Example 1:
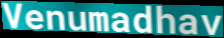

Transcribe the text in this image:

Venumadhav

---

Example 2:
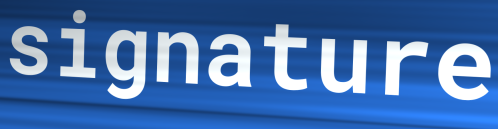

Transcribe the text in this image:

signature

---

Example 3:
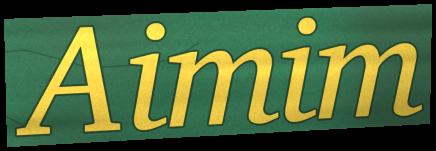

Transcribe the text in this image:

Aimim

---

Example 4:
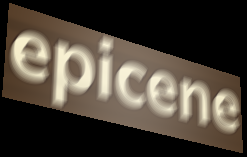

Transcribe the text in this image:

epicene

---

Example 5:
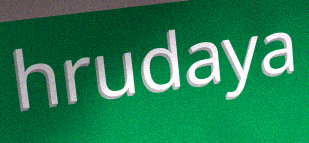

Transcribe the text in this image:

hrudaya